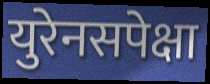
युरेनसपेक्षा